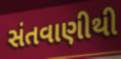
સંતવાણીથી